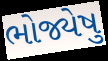
ભોજ્યેષુ